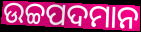
ଉଚ୍ଚପଦମାନ